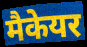
मैकेयर